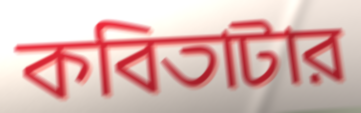
কবিতাটার